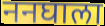
ननघाला